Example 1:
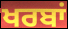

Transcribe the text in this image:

ਖਰਬਾਂ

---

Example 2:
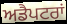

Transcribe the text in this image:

ਅਡੈਪਟਰਾਂ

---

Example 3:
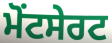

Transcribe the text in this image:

ਮੋਂਟਸੇਰਟ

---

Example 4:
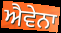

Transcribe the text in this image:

ਐਵੇਨਾ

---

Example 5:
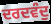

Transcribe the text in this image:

ਦਰਦਵੰਦੁ